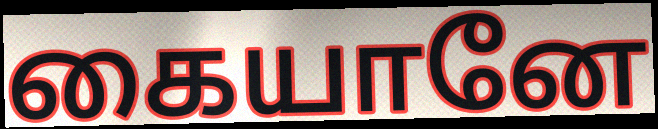
கையானே